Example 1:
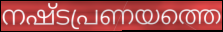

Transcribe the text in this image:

നഷ്ടപ്രണയത്തെ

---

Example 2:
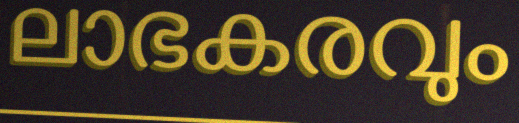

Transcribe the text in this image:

ലാഭകരവും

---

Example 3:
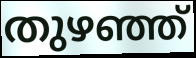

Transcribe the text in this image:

തുഴഞ്ഞ്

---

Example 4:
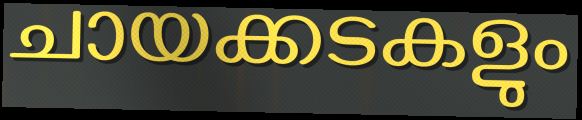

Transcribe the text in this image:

ചായക്കടകളും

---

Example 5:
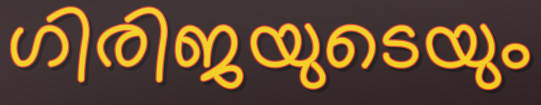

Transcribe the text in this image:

ഗിരിജയുടെയും